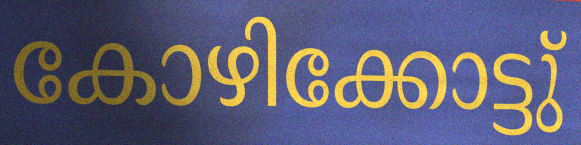
കോഴിക്കോട്ടു്